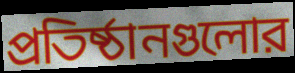
প্রতিষ্ঠানগুলোর